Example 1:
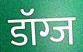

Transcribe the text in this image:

डॉग्ज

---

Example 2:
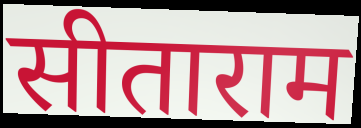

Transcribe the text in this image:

सीताराम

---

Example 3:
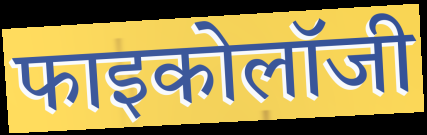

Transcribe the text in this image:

फाइकोलॉजी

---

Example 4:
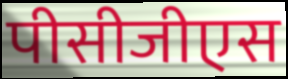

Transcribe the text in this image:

पीसीजीएस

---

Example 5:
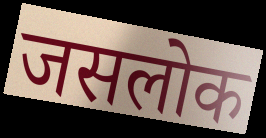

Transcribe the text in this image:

जसलोक